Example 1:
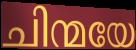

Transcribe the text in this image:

ചിന്മയേ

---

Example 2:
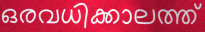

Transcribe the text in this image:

ഒരവധിക്കാലത്ത്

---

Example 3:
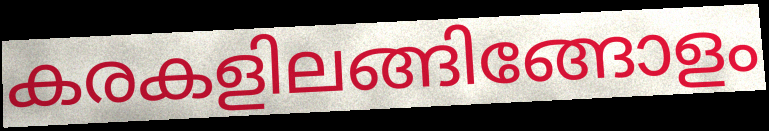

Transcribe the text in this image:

കരകളിലങ്ങിങ്ങോളം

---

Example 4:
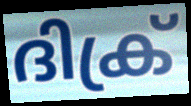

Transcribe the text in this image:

ദിക്ര്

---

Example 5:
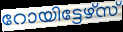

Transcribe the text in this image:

റോയിട്ടേഴ്സ്